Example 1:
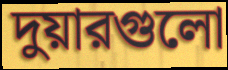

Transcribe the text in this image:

দুয়ারগুলো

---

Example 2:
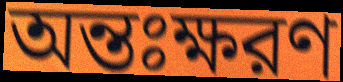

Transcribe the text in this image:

অন্তঃক্ষরণ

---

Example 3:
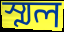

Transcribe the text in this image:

স্মল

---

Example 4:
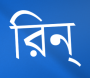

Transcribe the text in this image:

রিন্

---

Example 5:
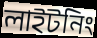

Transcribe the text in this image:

লাইটনিং